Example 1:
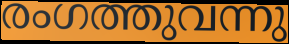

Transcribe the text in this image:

രംഗത്തുവന്നു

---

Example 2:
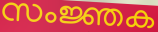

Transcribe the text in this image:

സംജ്ഞക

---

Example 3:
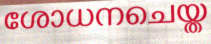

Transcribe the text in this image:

ശോധനചെയ്ത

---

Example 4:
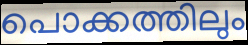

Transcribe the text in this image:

പൊക്കത്തിലും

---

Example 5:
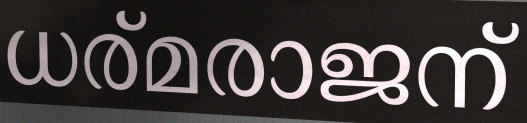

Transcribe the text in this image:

ധര്മരാജന്